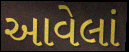
આવેલાં